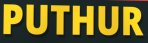
PUTHUR